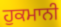
ਹੁਕਮਾਨੀ